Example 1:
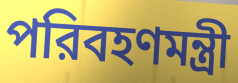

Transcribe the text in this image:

পরিবহণমন্ত্রী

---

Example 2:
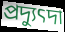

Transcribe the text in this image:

প্রদ্যুৎদা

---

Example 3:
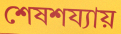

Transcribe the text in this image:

শেষশয্যায়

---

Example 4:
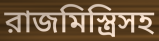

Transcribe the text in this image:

রাজমিস্ত্রিসহ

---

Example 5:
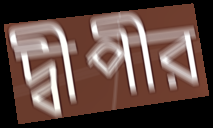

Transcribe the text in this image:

দ্বীপীর